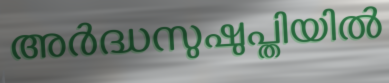
അർദ്ധസുഷുപ്തിയിൽ